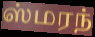
ஸ்மரந்